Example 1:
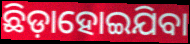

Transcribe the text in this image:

ଛିଡ଼ାହୋଇଯିବା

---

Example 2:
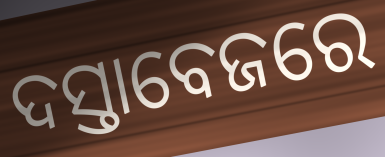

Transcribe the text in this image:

ଦସ୍ତାବେଜରେ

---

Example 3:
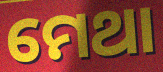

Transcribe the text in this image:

ମେଥା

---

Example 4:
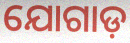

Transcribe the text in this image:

ଯୋଗାଡ଼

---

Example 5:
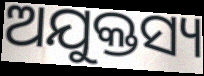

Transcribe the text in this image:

ଅଯୁକ୍ତସ୍ୟ